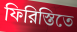
ফিরিস্তিতে